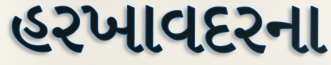
હરખાવદરના